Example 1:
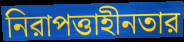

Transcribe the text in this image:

নিরাপত্তাহীনতার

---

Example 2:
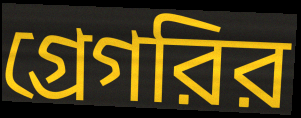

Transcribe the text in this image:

গ্রেগরির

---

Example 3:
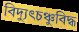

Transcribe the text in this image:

বিদ্যুৎচঞ্চুবিদ্ধ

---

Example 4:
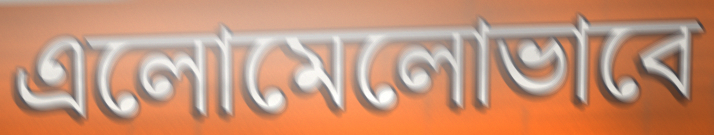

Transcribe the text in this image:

এলোমেলোভাবে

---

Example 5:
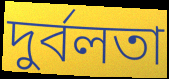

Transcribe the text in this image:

দুর্বলতা